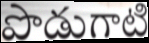
పొడుగాటి